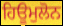
ਹਿਊਮੁਲੋਨ